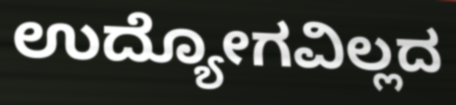
ಉದ್ಯೋಗವಿಲ್ಲದ